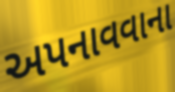
અપનાવવાના